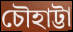
চৌহাট্টা